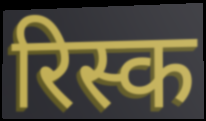
रिस्क